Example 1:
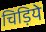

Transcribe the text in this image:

चिड़िये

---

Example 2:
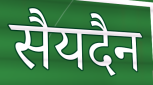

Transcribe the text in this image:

सैयदैन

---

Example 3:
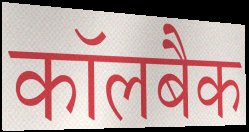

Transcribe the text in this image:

कॉलबैक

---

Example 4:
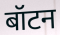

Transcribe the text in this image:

बॉटन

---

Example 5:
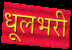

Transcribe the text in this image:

धूलभरी